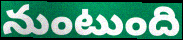
నుంటుంది